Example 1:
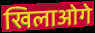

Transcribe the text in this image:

खिलाओगे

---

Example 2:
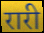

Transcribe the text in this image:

रारी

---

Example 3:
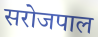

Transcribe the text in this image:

सरोजपाल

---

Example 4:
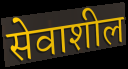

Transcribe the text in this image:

सेवाशील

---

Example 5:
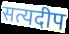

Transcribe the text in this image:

सत्यदीप